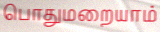
பொதுமறையாம்